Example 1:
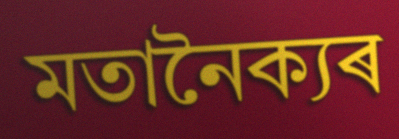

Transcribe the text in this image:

মতানৈক্যৰ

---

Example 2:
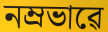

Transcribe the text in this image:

নম্ৰভাৱে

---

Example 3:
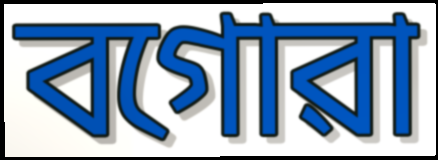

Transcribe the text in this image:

বগোৱা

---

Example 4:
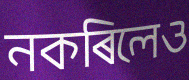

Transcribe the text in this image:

নকৰিলেও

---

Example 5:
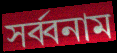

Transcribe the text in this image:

সৰ্ব্বনাম